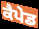
ਕੈਪੇਡ